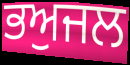
ਭਅੁਜਲ